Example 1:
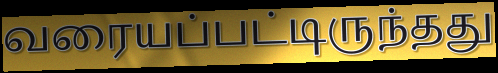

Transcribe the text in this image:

வரையப்பட்டிருந்தது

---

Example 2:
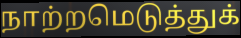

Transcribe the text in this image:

நாற்றமெடுத்துக்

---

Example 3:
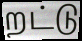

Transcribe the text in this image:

றட்டு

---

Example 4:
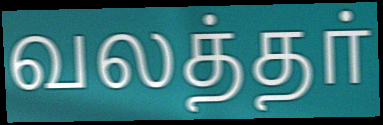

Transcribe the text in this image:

வலத்தர்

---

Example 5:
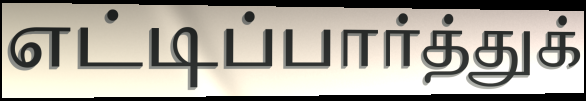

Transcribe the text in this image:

எட்டிப்பார்த்துக்